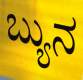
ಬ್ಯುನ